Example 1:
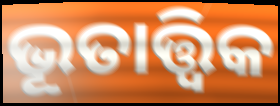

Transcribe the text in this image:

ଭୂତାତ୍ତ୍ୱିକ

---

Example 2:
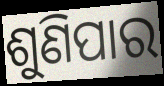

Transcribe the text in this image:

ଶୁଣିପାର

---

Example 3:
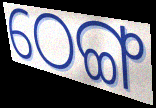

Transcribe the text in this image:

ଠେଙ୍ଗ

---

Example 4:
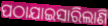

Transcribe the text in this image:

ପଠାଯାଇସାରିଲାଣି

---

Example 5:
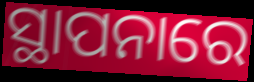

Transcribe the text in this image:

ସ୍ଥାପନାରେ